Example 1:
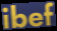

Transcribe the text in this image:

ibef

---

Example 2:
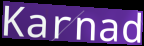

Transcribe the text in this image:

Karnad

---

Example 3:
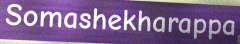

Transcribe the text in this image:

Somashekharappa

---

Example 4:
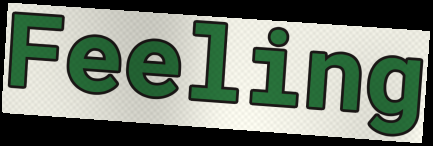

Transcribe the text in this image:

Feeling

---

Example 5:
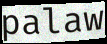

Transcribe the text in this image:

palaw